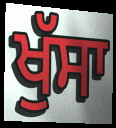
ਖੁੱਸਾ